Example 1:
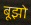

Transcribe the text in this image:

बूझो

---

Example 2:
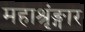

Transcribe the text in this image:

महाश्रृंङ्गार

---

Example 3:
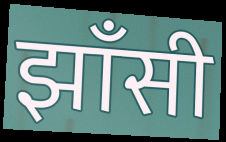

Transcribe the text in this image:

झाँसी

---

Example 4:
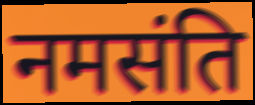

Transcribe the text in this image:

नमसंति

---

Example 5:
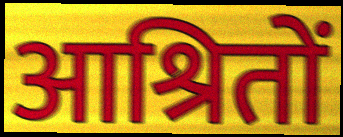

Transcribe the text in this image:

आश्रितों